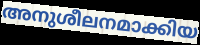
അനുശീലനമാക്കിയ